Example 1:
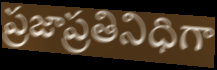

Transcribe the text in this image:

ప్రజాప్రతినిధిగా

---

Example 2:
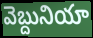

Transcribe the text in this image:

వెబ్దునియా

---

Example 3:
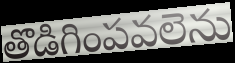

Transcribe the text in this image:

తొడిగింపవలెను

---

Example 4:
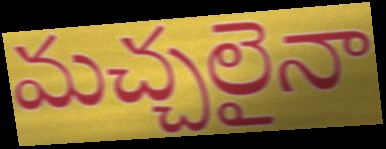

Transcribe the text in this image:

మచ్చలైనా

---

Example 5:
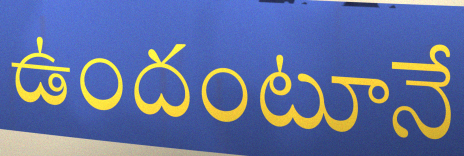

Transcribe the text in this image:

ఉందంటూనే